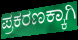
ಪ್ರಕರಣಕ್ಕಾಗಿ